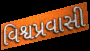
વિશ્વપ્રવાસી